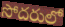
సోదరులో